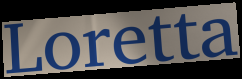
Loretta